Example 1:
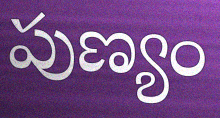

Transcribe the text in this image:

పుణ్యం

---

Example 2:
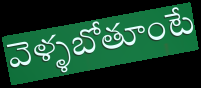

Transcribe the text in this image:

వెళ్ళబోతూంటే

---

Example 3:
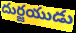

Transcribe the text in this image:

దుర్జయుడు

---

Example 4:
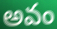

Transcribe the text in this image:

అవం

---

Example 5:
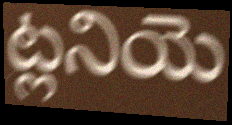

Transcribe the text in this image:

ట్లనియె